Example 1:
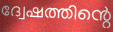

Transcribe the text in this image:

ദ്വേഷത്തിന്റെ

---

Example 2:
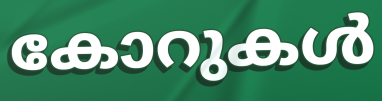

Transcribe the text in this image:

കോറുകൾ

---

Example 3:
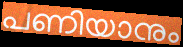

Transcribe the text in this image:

പണിയാനും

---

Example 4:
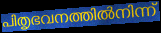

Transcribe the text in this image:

പിതൃഭവനത്തിൽനിന്ന്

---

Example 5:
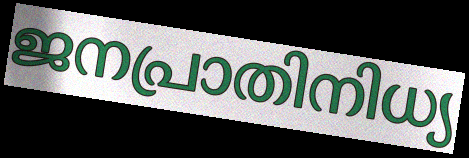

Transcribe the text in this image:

ജനപ്രാതിനിധ്യ